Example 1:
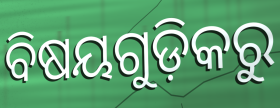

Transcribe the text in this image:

ବିଷୟଗୁଡ଼ିକରୁ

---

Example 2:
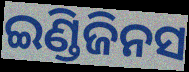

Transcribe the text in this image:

ଇଣ୍ଡିଜିନସ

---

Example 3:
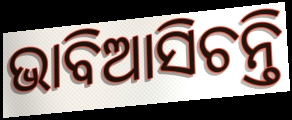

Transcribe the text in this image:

ଭାବିଆସିଚନ୍ତି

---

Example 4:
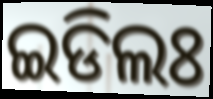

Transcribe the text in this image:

ଇଡିଲଃ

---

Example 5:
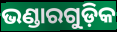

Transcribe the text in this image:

ଭଣ୍ଡାରଗୁଡ଼ିକ